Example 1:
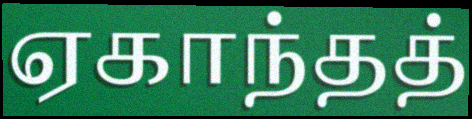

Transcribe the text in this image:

ஏகாந்தத்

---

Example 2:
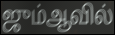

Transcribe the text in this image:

ஜும்ஆவில்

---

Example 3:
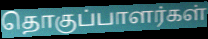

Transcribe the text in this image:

தொகுப்பாளர்கள்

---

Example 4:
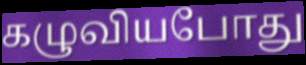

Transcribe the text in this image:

கழுவியபோது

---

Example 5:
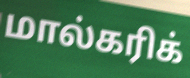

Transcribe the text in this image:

மால்கரிக்